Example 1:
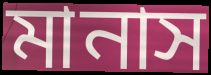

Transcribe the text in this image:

মানাস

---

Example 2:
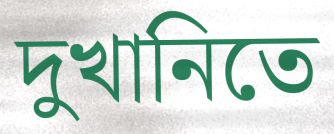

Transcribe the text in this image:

দুখানিতে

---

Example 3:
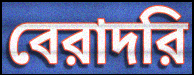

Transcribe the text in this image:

বেরাদরি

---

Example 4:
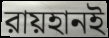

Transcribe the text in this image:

রায়হানই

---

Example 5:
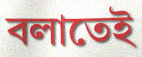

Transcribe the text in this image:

বলাতেই